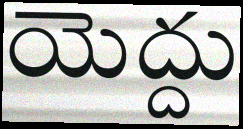
యెద్దు